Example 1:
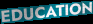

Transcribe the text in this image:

EDUCATION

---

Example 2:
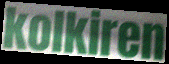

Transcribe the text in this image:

kolkiren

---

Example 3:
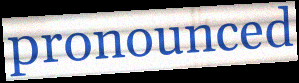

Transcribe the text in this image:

pronounced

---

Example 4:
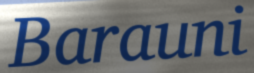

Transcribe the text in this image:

Barauni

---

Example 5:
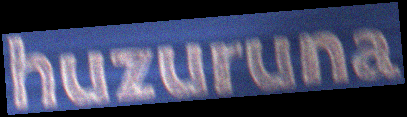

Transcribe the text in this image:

huzuruna